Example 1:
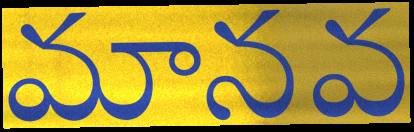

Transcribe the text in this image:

మానవ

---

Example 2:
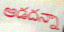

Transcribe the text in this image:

ఆడదన్నా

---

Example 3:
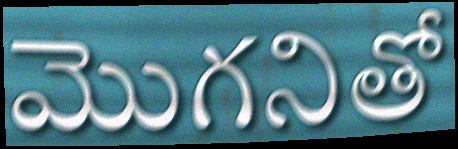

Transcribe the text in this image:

మొగనితో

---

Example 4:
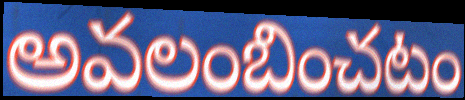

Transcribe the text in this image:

అవలంబించటం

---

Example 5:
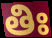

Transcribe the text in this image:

తిః